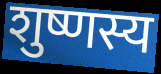
शुष्णस्य